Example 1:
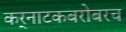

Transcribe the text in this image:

कर्नाटकबरोबरच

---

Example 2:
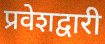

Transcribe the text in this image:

प्रवेशद्वारी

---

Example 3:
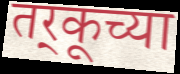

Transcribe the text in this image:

तर्कूच्या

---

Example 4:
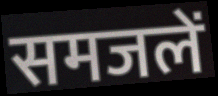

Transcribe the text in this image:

समजलें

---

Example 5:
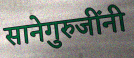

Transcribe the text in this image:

सानेगुरुजींनी